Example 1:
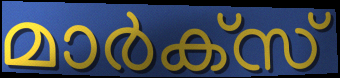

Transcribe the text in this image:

മാർക്‌സ്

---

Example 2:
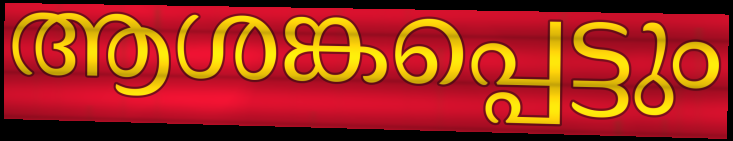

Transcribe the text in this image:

ആശങ്കപ്പെട്ടും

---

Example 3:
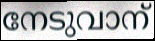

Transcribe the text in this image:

നേടുവാന്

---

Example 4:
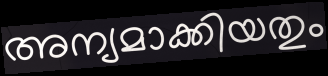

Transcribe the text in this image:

അന്യമാക്കിയതും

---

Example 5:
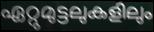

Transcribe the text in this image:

ഏറ്റുമുട്ടലുകളിലും